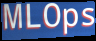
MLOps